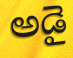
అడై